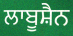
ਲਾਬੂਸ਼ੈਨ